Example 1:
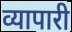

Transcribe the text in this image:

व्यापारी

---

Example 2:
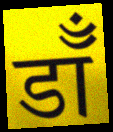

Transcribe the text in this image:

डॉँ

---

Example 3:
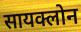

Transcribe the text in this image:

सायक्लोन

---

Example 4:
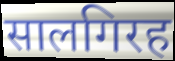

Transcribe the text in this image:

सालगिरह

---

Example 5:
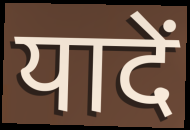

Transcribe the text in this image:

यादें